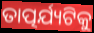
ତାତ୍ପର୍ଯ୍ୟଟିକୁ